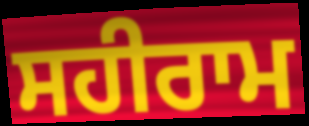
ਸਹੀਰਾਮ